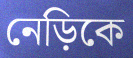
নেড়িকে